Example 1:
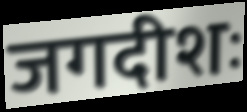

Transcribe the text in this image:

जगदीशः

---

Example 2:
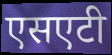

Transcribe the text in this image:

एसएटी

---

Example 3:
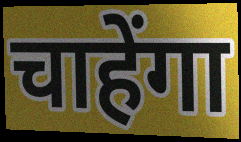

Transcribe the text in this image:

चाहेंगा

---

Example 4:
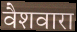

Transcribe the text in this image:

वैशवारा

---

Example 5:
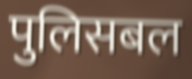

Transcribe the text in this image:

पुलिसबल